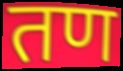
तण